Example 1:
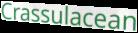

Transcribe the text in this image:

Crassulacean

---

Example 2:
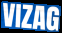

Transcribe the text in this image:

VIZAG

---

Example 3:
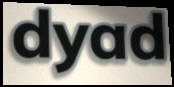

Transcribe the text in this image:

dyad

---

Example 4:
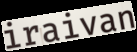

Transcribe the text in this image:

iraivan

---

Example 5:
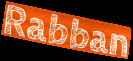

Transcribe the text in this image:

Rabban